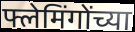
फ्लेमिंगोंच्या